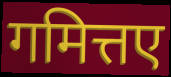
गमित्तए